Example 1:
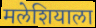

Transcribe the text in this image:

मलेशियाला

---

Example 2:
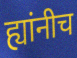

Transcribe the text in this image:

ह्यांनीच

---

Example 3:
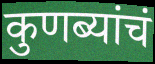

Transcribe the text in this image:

कुणब्यांचं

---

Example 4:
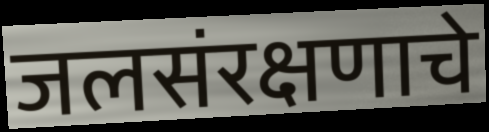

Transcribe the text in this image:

जलसंरक्षणाचे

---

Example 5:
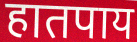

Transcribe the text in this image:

हातपाय